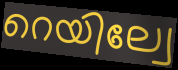
റെയില്വേ